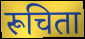
रूचिता